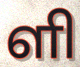
ளி